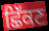
ਛਿੱਕਣ